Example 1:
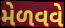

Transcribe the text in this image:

મેળવવે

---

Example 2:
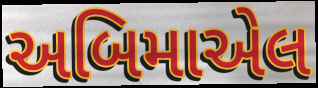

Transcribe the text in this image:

અબિમાએલ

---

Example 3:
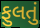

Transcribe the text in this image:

ફુલતું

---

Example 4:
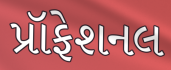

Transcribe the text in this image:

પ્રૉફેશનલ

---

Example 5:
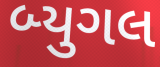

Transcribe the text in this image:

બ્યુગલ